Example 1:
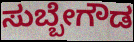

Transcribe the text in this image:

ಸುಬ್ಬೇಗೌಡ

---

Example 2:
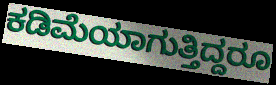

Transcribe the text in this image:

ಕಡಿಮೆಯಾಗುತ್ತಿದ್ದರೂ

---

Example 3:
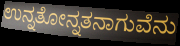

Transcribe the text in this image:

ಉನ್ನತೋನ್ನತನಾಗುವೆನು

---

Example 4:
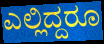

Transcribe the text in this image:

ಎಲ್ಲಿದ್ದರೂ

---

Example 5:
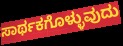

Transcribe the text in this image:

ಸಾರ್ಥಕಗೊಳ್ಳುವುದು